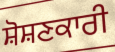
ਸ਼ੋਸ਼ਣਕਾਰੀ